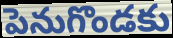
పెనుగొండకు